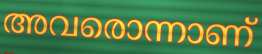
അവരൊന്നാണ്